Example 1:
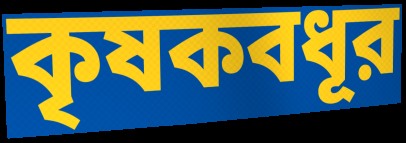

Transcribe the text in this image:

কৃষকবধূর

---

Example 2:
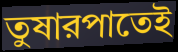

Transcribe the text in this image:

তুষারপাতেই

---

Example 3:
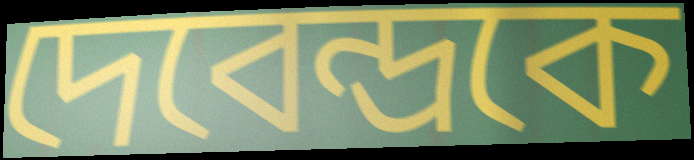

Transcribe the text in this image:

দেবেন্দ্রকে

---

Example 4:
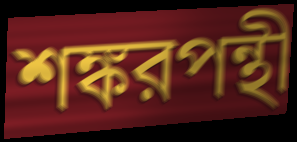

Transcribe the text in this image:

শঙ্করপন্থী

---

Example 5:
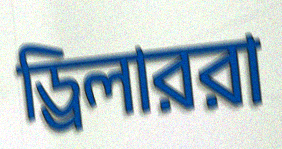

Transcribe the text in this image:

ড্রিলাররা